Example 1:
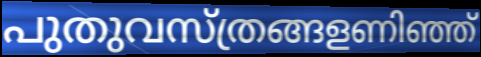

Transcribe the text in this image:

പുതുവസ്ത്രങ്ങളണിഞ്ഞ്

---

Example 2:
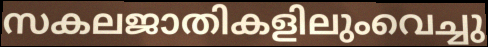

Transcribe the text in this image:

സകലജാതികളിലുംവെച്ചു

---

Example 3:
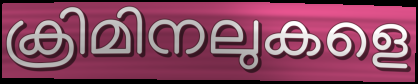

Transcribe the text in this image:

ക്രിമിനലുകളെ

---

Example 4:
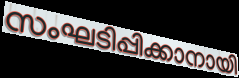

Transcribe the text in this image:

സംഘടിപ്പിക്കാനായി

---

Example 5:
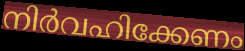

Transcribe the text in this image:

നിർവഹിക്കേണം